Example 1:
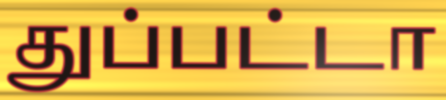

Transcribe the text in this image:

துப்பட்டா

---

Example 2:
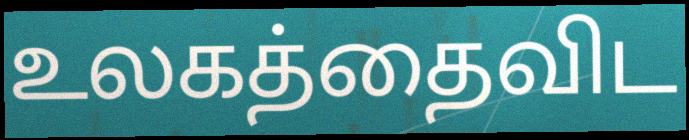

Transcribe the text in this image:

உலகத்தைவிட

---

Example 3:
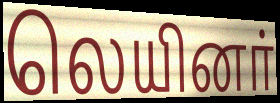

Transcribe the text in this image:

லெயினர்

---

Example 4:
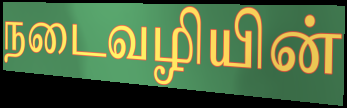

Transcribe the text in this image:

நடைவழியின்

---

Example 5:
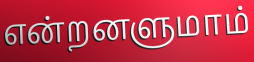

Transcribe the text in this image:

என்றனளுமாம்